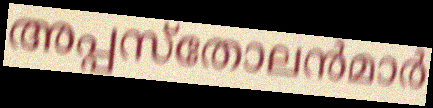
അപ്പസ്തോലൻമാർ